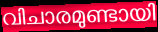
വിചാരമുണ്ടായി